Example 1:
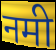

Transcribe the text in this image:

नमी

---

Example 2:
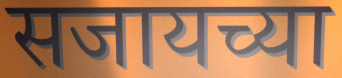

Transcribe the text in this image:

सजायच्या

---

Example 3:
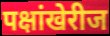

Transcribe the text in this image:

पक्षांखेरीज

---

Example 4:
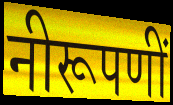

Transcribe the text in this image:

नीरूपणीं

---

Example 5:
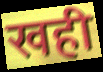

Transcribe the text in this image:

खही